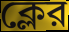
ক্লের